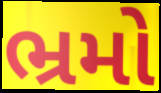
ભ્રમો